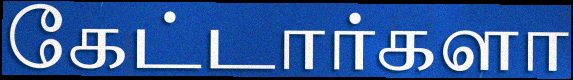
கேட்டார்களா